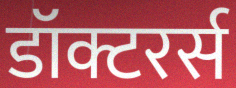
डॉक्टरर्स